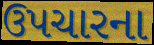
ઉપચારના